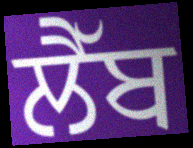
ਲੈੱਬ